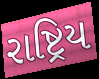
રાષ્ટ્રિય